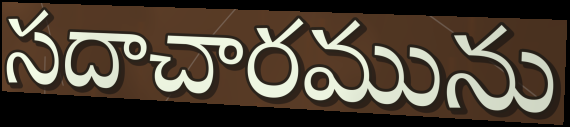
సదాచారమును